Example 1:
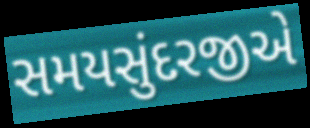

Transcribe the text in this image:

સમયસુંદરજીએ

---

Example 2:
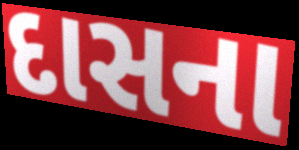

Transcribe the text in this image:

દાસના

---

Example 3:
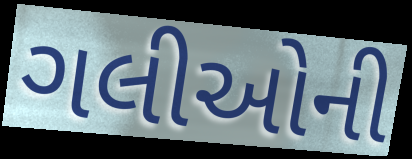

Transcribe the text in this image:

ગલીઓની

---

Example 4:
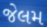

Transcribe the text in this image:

જેલમ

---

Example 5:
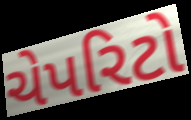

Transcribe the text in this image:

ચેપરિટો